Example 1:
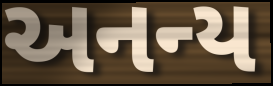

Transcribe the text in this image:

અનન્ય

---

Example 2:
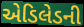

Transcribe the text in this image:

એડિલેડની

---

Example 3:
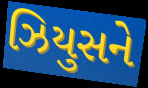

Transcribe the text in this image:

ઝિયુસને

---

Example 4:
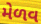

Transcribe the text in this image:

મેળવ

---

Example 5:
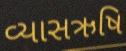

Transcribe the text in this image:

વ્યાસઋષિ